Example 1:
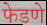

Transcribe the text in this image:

फेडणे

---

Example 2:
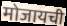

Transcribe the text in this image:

मोजायची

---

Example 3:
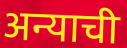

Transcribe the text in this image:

अन्याची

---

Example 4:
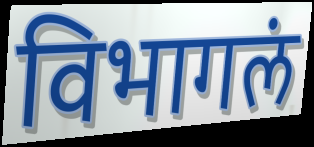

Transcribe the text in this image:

विभागलं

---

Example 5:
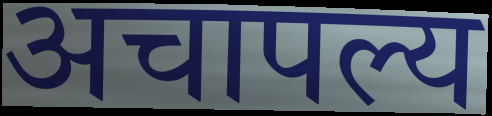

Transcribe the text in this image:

अचापल्य